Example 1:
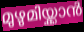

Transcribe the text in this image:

മുഴുമിയ്ക്കാൻ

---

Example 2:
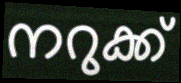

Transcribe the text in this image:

നറുക്ക്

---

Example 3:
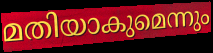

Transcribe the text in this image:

മതിയാകുമെന്നും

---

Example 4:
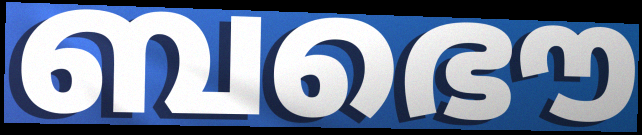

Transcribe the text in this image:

ബഭൌ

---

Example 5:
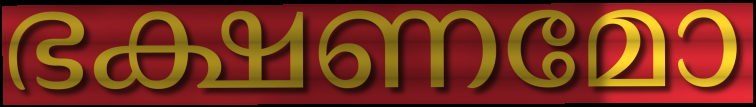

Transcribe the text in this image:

ഭക്ഷണമോ